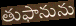
తుఫానును